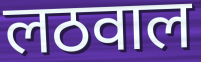
लठवाल